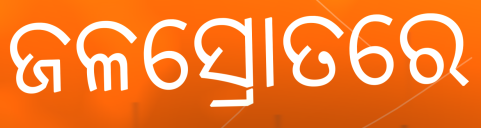
ଜଳସ୍ରୋତରେ